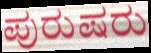
ಪುರುಷರು